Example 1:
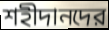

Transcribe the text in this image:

শহীদানদের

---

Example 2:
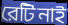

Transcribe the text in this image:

রেটিনাই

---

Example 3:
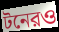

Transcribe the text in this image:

টনেরও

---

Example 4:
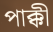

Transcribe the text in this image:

পাক্কী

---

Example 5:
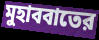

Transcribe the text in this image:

মুহাববাতের